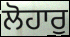
ਲੋਹਾਰੁ